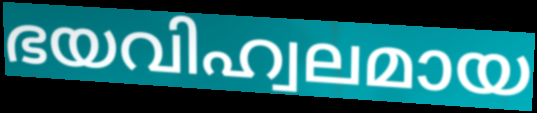
ഭയവിഹ്വലമായ